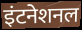
इंटनेशनल